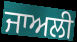
ਜਾਅਲੀ